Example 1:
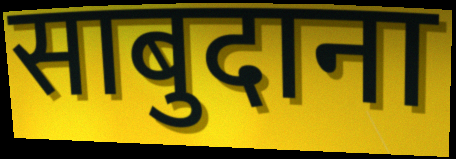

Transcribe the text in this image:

साबुदाना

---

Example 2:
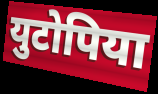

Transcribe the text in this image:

युटोपिया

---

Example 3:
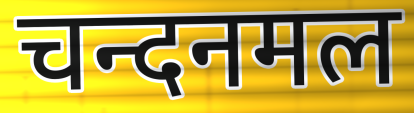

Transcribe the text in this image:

चन्दनमल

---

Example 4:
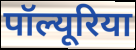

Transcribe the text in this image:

पॉल्यूरिया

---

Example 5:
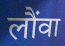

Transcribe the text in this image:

लौंवा